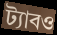
ট্যাবও